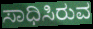
ಸಾಧಿಸಿರುವ